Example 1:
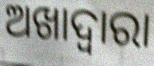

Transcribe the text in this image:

ଅଖାଦ୍ୱାରା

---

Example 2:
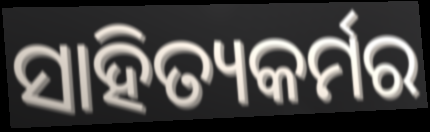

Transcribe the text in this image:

ସାହିତ୍ୟକର୍ମର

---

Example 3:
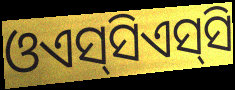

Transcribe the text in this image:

ଓଏସ୍‌ସିଏସ୍‌ସି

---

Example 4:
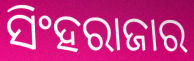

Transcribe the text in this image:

ସିଂହରାଜାର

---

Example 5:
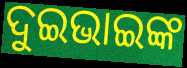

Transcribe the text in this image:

ଦୁଇଭାଇଙ୍କ